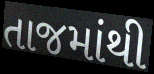
તાજમાંથી